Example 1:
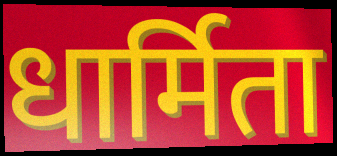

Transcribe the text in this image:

धार्मिता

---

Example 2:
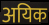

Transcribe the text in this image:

अयिक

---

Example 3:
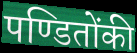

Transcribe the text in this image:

पण्डितोंकी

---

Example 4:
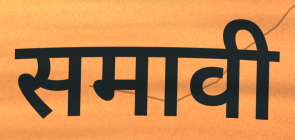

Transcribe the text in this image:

समावी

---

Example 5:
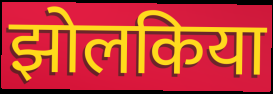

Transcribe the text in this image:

झोलकिया